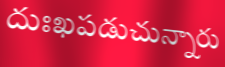
దుఃఖపడుచున్నారు